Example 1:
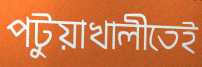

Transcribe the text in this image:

পটুয়াখালীতেই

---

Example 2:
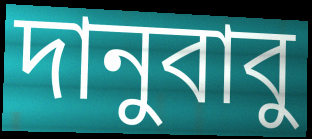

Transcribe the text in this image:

দানুবাবু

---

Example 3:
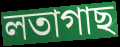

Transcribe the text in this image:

লতাগাছ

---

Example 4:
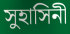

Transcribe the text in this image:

সুহাসিনী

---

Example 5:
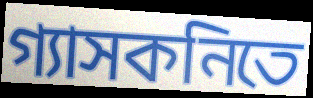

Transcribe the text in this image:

গ্যাসকনিতে